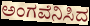
ಅಂಗವೆನಿಸಿದ